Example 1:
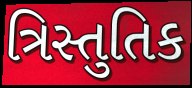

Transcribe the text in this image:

ત્રિસ્તુતિક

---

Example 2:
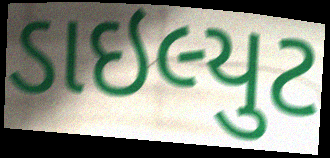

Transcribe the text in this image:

ડાઇલ્યુટ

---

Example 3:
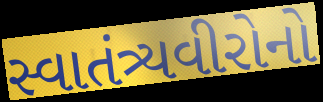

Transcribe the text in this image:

સ્વાતંત્ર્યવીરોનો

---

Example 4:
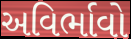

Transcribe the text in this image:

અવિર્ભાવો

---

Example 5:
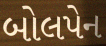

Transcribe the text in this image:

બોલપેન